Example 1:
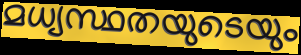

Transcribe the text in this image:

മധ്യസ്ഥതയുടെയും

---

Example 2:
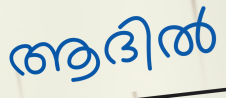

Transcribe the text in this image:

ആദിൽ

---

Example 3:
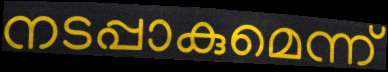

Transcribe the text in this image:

നടപ്പാകുമെന്ന്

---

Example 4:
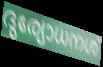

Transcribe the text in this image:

ദുര്യോധനശ്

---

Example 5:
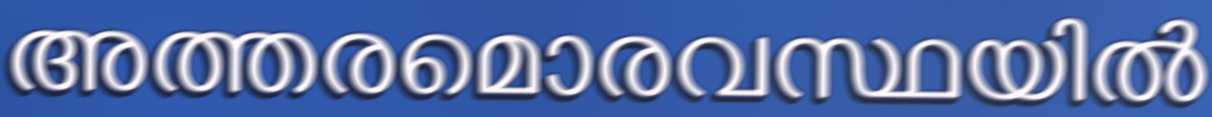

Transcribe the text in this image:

അത്തരമൊരവസ്ഥയിൽ